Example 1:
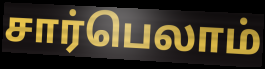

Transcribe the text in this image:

சார்பெலாம்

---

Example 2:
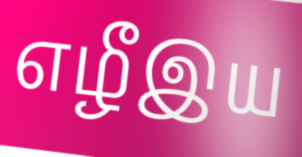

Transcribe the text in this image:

எழீஇய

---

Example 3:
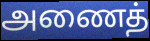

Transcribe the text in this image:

அணைத்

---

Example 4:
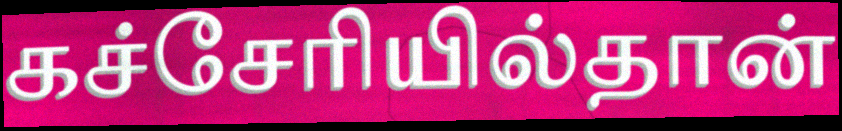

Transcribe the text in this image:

கச்சேரியில்தான்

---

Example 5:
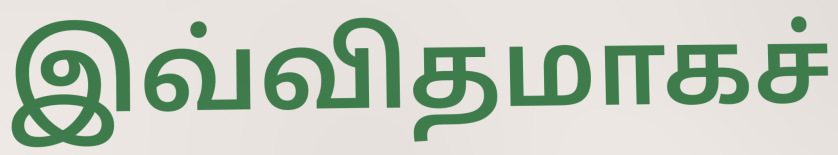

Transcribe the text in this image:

இவ்விதமாகச்